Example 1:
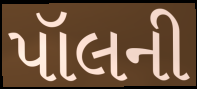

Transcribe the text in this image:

પૉલની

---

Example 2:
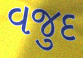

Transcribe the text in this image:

વજુદ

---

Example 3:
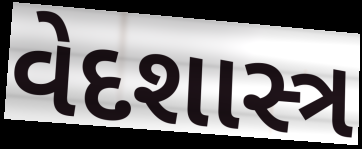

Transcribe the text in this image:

વેદશાસ્ત્ર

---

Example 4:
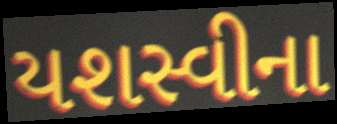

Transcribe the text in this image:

યશસ્વીના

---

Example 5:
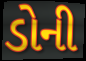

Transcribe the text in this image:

ડોની